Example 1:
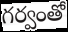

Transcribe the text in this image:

గర్వంతో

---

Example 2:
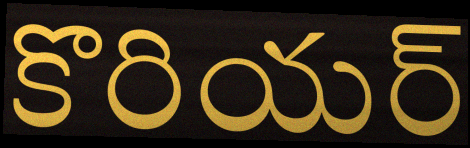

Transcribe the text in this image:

కొరియర్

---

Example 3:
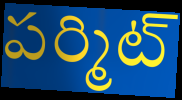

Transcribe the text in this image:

పర్మిట్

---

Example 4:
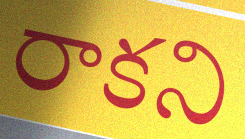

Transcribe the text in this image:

రాకని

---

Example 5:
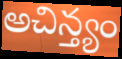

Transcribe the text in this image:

అచిన్త్యం